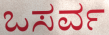
ಒಸರ್ವ